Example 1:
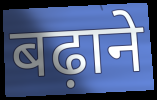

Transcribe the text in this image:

बढ़ाने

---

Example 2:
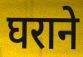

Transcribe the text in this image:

घराने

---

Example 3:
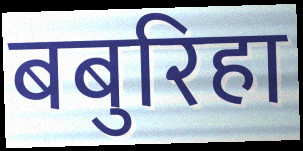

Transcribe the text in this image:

बबुरिहा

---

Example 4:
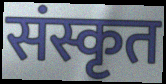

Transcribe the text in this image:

संस्कृत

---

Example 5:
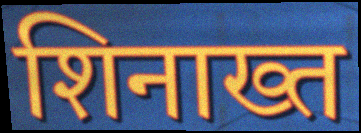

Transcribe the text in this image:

शिनाख्त